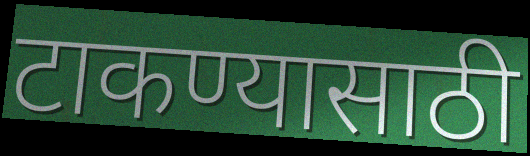
टाकण्यासाठी